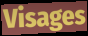
Visages